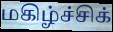
மகிழ்ச்சிக்